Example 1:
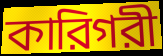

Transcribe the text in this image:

কারিগরী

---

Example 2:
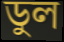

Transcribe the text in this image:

ডুল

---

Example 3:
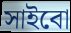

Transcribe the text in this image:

সাইবো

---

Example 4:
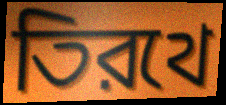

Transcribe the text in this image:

তিরথে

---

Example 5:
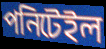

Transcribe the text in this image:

পনিটেইল